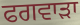
ਫਗਵਾੜਾ